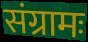
संग्रामः